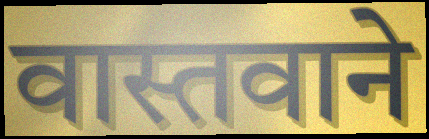
वास्तवाने